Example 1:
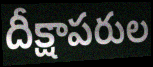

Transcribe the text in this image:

దీక్షాపరుల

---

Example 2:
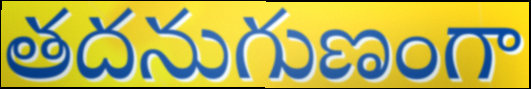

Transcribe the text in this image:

తదనుగుణంగా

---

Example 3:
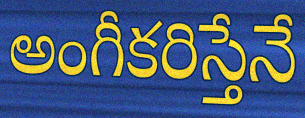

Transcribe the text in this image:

అంగీకరిస్తేనే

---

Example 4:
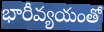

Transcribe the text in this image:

భారీవ్యయంతో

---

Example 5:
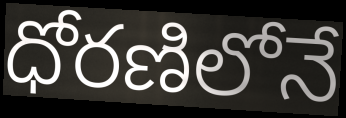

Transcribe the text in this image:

ధోరణిలోనే